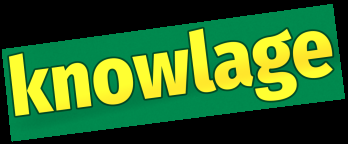
knowlage